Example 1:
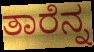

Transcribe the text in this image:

ತಾರೆನ್ನ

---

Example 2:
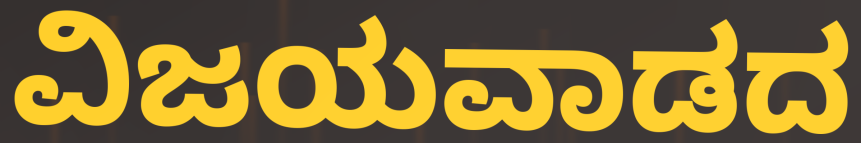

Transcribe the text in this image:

ವಿಜಯವಾಡದ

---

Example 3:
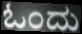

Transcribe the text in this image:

ಓಂದು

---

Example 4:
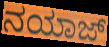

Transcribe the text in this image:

ನಯಾಜ್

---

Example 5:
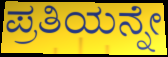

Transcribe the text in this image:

ಪ್ರತಿಯನ್ನೇ